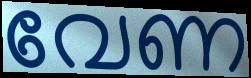
വേണ